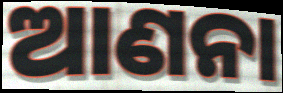
ଆଣନା